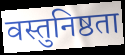
वस्तुनिष्ठता